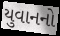
યુવાનનો